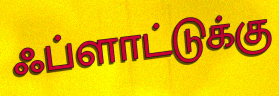
ஃப்ளாட்டுக்கு